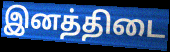
இனத்திடை